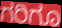
ಗರಿಗೂ